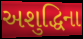
અશુદ્ધિના